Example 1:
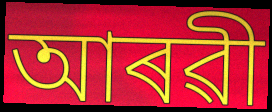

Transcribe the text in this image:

আৰৱী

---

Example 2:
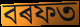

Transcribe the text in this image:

বৰফত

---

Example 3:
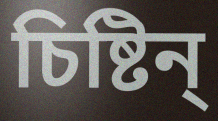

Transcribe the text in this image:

চিষ্টিন্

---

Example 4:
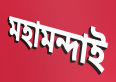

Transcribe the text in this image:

মহামন্দাই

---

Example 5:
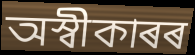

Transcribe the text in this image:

অস্বীকাৰৰ